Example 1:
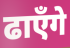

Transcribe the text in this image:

ढाएँगे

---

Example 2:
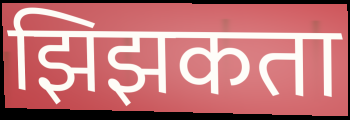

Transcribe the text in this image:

झिझकता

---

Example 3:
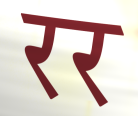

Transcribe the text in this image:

रर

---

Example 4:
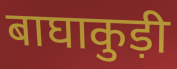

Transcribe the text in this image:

बाघाकुड़ी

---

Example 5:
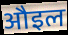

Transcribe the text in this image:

औइल